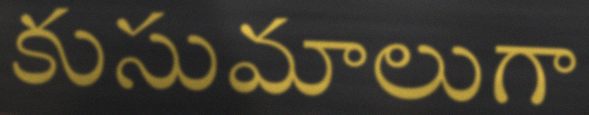
కుసుమాలుగా